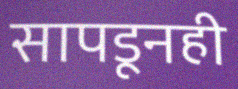
सापडूनही